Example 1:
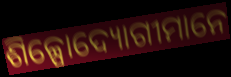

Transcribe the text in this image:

ଶିଳ୍ପୋଦ୍ୟୋଗୀମାନେ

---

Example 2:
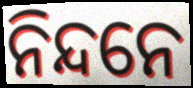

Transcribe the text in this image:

ନିନ୍ଦନେ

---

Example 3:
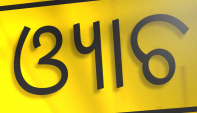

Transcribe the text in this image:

ଓ୍ୟାଚ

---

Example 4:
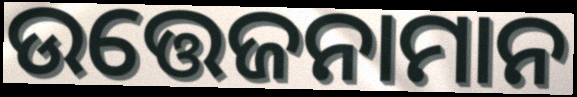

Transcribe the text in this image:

ଉତ୍ତେଜନାମାନ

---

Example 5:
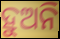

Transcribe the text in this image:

ହୁଅନି